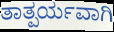
ತಾತ್ಪರ್ಯವಾಗಿ